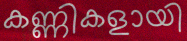
കണ്ണികളായി